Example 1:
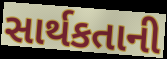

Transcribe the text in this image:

સાર્થકતાની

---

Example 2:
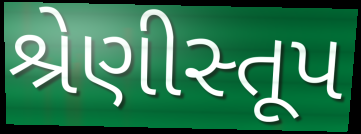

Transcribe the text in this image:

શ્રેણીસ્તૂપ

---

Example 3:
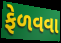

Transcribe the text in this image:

ફેળવવા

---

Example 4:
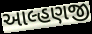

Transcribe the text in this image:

આલ્હણજી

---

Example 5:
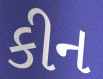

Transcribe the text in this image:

કીન